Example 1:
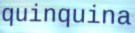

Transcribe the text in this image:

quinquina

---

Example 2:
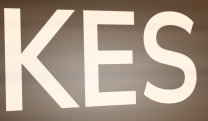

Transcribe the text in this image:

KES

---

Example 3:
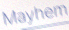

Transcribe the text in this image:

Mayhem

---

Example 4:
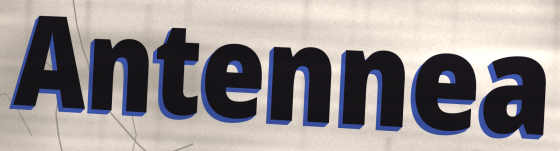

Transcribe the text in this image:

Antennea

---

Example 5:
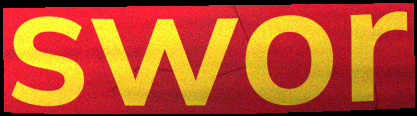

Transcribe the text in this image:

swor